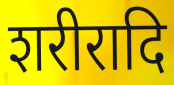
शरीरादि